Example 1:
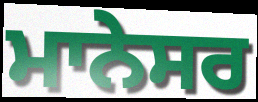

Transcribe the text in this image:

ਮਾਨੇਸਰ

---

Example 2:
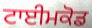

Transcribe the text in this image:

ਟਾਈਮਕੋਡ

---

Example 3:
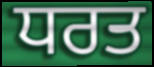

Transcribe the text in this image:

ਧਰਤ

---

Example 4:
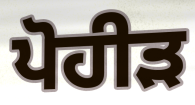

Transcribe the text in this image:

ਪੋਹੀੜ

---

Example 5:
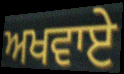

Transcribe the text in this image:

ਅਖਵਾਏ